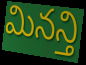
మినన్తి